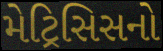
મેટ્રિસિસનો